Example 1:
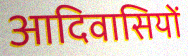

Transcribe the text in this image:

आदिवासियों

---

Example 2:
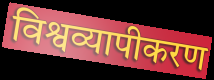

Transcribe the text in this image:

विश्वव्यापीकरण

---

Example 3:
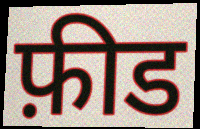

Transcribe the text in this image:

फ़ीड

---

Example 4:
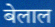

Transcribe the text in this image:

बेलाल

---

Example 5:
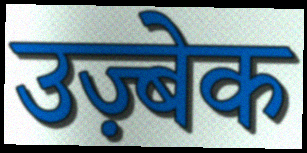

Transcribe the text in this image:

उज़्बेक